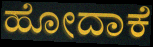
ಹೋದಾಕೆ